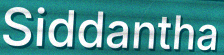
Siddantha